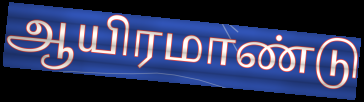
ஆயிரமாண்டு